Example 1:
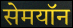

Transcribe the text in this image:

सेमयॉन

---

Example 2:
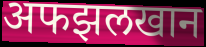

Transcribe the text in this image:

अफझलखान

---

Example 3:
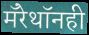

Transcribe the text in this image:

मॅरेथॉनही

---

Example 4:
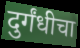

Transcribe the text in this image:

दुर्गंधीचा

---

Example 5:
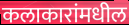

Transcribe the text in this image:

कलाकारांमधील